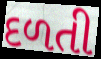
દળતી